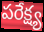
పరేక్ష్య